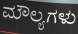
ಮೌಲ್ಯಗಳು